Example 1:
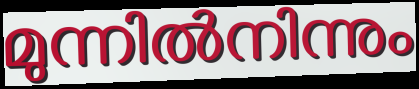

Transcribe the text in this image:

മുന്നിൽനിന്നും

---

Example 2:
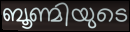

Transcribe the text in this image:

ബൂണ്മിയുടെ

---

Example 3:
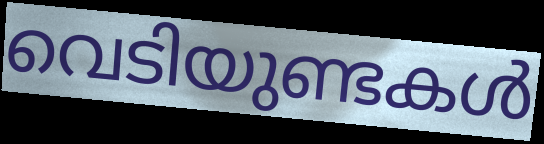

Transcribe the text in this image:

വെടിയുണ്ടകൾ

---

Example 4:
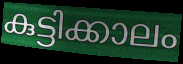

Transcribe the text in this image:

കുട്ടിക്കാലം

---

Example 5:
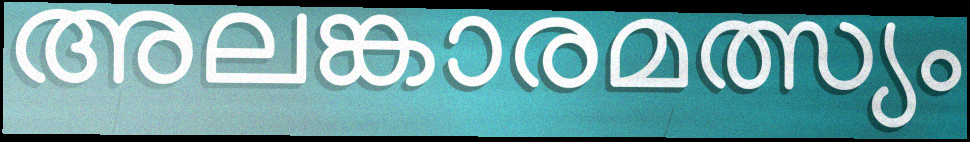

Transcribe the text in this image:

അലങ്കാരമത്സ്യം